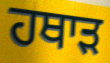
ਹਥਾੜ